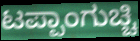
ಟಪ್ಪಾಂಗುಚ್ಚಿ